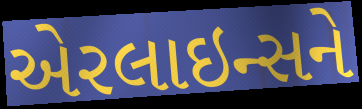
એરલાઇન્સને